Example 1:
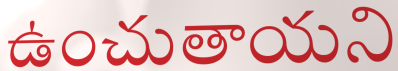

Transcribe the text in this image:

ఉంచుతాయని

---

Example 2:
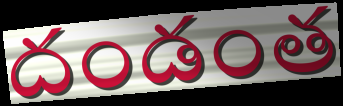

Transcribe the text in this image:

దండంత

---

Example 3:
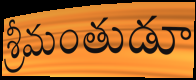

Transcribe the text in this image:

శ్రీమంతుడూ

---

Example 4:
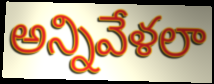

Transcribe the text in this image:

అన్నివేళలా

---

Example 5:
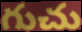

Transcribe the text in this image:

గుచు